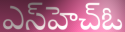
ఎస్‌హెచ్ఓ